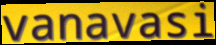
vanavasi